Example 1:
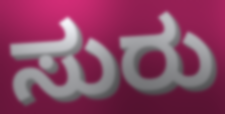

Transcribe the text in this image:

ಸುರು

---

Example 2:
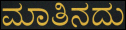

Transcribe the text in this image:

ಮಾತಿನದು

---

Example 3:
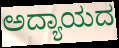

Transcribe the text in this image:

ಅದ್ಯಾಯದ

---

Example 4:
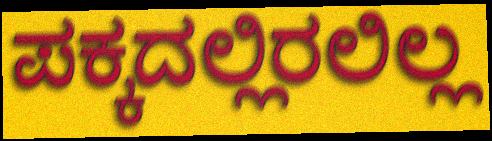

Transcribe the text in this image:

ಪಕ್ಕದಲ್ಲಿರಲಿಲ್ಲ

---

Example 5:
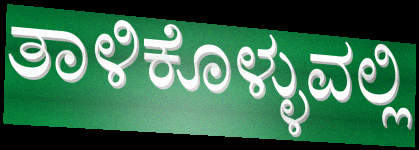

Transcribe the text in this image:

ತಾಳಿಕೊಳ್ಳುವಲ್ಲಿ